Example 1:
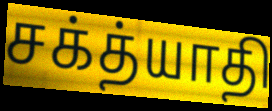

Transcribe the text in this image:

சக்த்யாதி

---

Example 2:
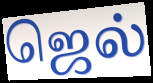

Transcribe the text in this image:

ஜெல்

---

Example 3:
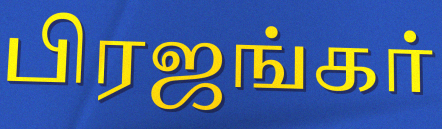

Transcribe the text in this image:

பிரஜங்கர்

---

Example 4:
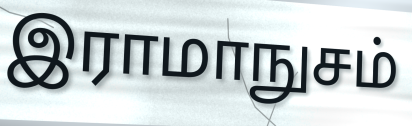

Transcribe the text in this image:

இராமாநுசம்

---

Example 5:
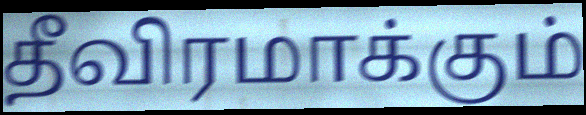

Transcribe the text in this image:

தீவிரமாக்கும்